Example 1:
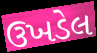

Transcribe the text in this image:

ઉખડેલ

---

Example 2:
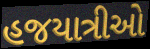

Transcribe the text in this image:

હજયાત્રીઓ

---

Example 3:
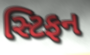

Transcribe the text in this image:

સ્ટિફન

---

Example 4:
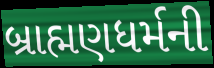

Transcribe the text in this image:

બ્રાહ્મણધર્મની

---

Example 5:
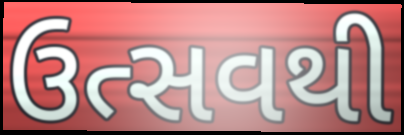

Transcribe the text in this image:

ઉત્સવથી